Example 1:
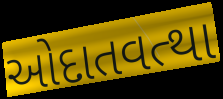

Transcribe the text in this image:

ઓદાતવત્થા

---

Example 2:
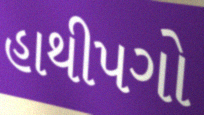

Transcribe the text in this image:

હાથીપગો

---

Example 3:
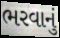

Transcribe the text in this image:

ભરવાનું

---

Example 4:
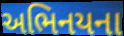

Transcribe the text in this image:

અભિનયના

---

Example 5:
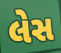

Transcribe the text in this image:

લેસ